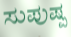
ಸುಪುಷ್ಪ